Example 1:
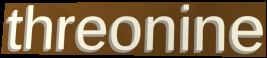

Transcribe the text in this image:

threonine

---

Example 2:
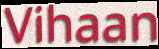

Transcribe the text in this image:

Vihaan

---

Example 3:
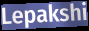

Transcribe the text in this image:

Lepakshi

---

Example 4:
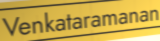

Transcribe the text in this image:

Venkataramanan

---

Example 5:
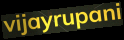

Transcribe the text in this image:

vijayrupani